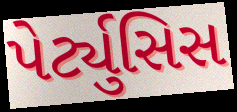
પેર્ટ્યુસિસ